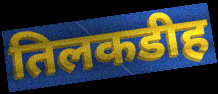
तिलकडीह